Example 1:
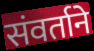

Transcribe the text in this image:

संवर्ताने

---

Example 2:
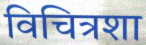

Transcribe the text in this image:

विचित्रशा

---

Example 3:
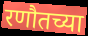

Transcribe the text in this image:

रणौतच्या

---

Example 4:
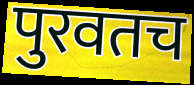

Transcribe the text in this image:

पुरवतच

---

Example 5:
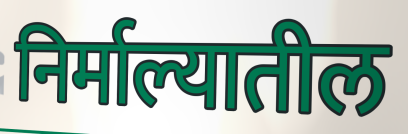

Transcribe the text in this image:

निर्माल्यातील